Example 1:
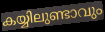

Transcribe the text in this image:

കയ്യിലുണ്ടാവും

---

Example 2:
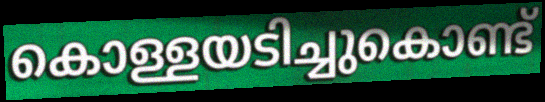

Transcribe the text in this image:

കൊള്ളയടിച്ചുകൊണ്ട്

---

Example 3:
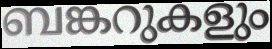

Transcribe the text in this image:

ബങ്കറുകളും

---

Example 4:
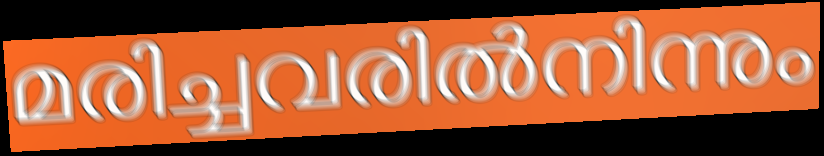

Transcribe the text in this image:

മരിച്ചവരിൽനിന്നും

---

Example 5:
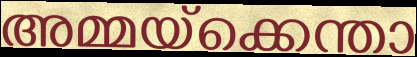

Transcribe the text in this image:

അമ്മയ്‌ക്കെന്താ